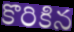
కొరికిన